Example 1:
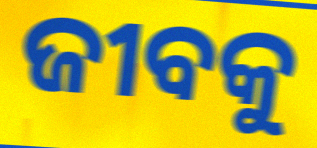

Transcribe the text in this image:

ଜୀବକୁ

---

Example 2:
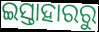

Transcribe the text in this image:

ଇସ୍ତାହାରରୁ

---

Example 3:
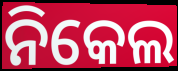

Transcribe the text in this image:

ନିକେଲ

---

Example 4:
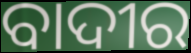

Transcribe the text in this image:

ବାଦୀର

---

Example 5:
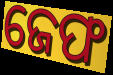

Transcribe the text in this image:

ଜେଫ